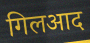
गिलआद